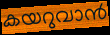
കയറുവാൻ